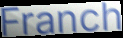
Franch